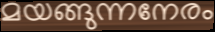
മയങ്ങുന്നനേരം